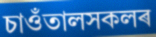
চাওঁতালসকলৰ